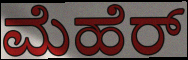
ಮೆಹೆರ್